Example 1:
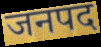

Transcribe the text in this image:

जनपद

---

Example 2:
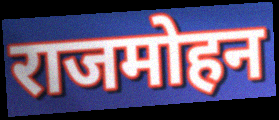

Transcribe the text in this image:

राजमोहन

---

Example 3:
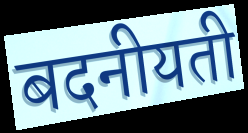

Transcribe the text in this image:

बदनीयती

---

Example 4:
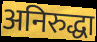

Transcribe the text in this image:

अनिरुद्धा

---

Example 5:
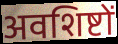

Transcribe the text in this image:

अवशिष्टों